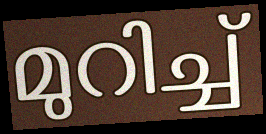
മുറിച്ച്